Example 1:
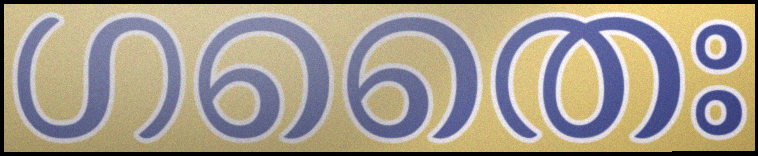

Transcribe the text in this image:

ഗതൈഃ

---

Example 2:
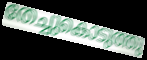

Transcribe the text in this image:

തേച്ചുകൊടുത്തു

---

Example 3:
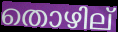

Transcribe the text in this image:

തൊഴില്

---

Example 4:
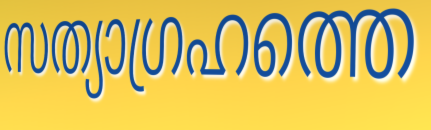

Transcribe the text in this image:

സത്യാഗ്രഹത്തെ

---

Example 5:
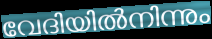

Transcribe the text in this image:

വേദിയിൽനിന്നും